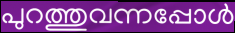
പുറത്തുവന്നപ്പോൾ